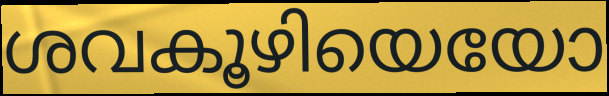
ശവകൂഴിയെയോ